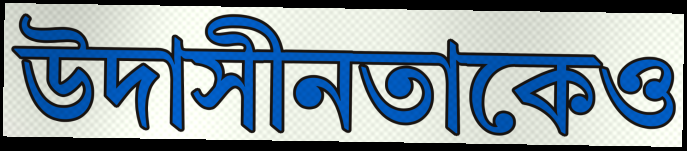
উদাসীনতাকেও